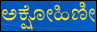
ಅಕ್ಷೋಹಿಣೀ